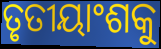
ତୃତୀୟାଂଶକୁ